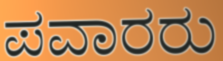
ಪವಾರರು